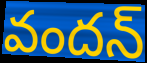
వందన్